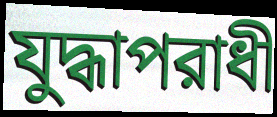
যুদ্ধাপরাধী